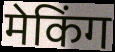
मेकिंग